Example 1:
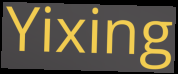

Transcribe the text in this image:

Yixing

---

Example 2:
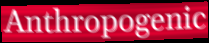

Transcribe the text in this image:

Anthropogenic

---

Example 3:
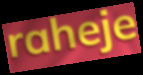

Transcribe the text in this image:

raheje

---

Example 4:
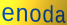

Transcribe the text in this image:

enoda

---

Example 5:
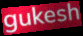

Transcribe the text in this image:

gukesh